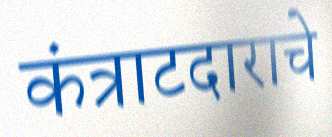
कंत्राटदाराचे